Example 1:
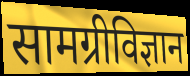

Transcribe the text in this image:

सामग्रीविज्ञान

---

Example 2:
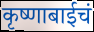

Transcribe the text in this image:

कृष्णाबाईचं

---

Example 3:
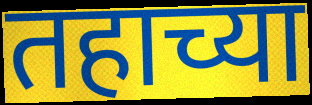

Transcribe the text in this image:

तहाच्या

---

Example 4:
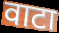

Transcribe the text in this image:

वाटा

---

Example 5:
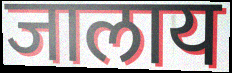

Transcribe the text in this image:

जालाय